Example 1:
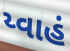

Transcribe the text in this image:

ય્વાહં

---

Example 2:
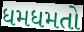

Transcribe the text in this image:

ધમધમતો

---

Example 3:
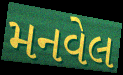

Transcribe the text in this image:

મનવેલ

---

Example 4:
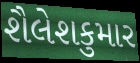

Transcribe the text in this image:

શૈલેશકુમાર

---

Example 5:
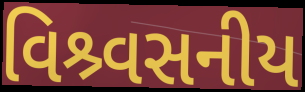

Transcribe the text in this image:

વિશ્ર્વસનીય